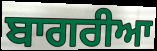
ਬਾਗਰੀਆ